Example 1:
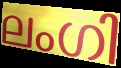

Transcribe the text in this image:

ലംഗി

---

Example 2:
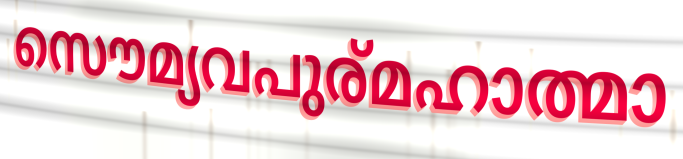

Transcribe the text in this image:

സൌമ്യവപുര്മഹാത്മാ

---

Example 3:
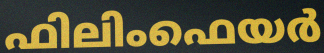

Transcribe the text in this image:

ഫിലിംഫെയർ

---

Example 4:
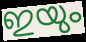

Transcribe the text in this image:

ഇയും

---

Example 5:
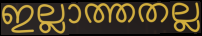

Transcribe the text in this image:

ഇല്ലാത്തതല്ല